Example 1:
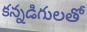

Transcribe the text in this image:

కన్నడిగులతో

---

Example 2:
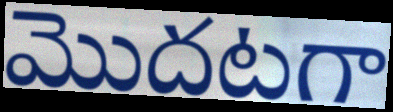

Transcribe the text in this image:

మొదటగా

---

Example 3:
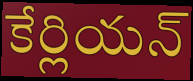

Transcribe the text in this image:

కేర్లియన్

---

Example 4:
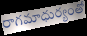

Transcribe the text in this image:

రాగమాధుర్యంతో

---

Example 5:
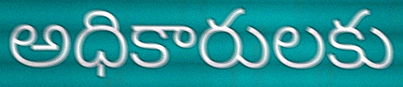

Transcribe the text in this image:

అధికారులకు